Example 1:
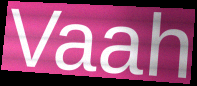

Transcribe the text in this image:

Vaah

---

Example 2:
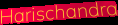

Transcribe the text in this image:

Harischandra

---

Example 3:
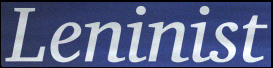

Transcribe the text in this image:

Leninist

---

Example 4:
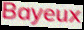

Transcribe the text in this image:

Bayeux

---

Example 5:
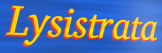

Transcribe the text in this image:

Lysistrata